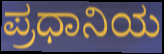
ಪ್ರಧಾನಿಯ